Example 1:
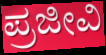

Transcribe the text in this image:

ಪ್ರಜೀವಿ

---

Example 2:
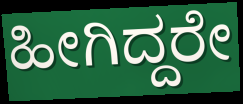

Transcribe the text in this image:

ಹೀಗಿದ್ದರೇ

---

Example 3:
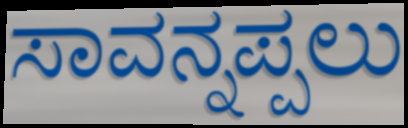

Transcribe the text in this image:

ಸಾವನ್ನಪ್ಪಲು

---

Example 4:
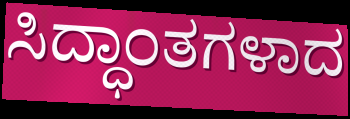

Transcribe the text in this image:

ಸಿದ್ಧಾಂತಗಳಾದ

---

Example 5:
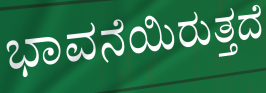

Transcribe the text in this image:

ಭಾವನೆಯಿರುತ್ತದೆ